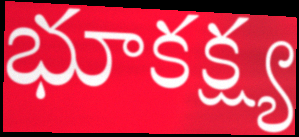
భూకక్ష్య